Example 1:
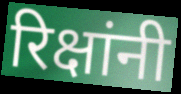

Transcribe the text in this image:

रिक्षांनी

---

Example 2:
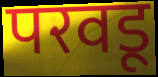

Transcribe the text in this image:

परवडू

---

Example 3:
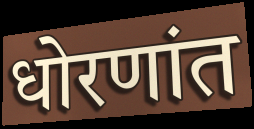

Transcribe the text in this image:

धोरणांत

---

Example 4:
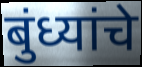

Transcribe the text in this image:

बुंध्यांचे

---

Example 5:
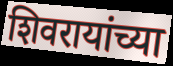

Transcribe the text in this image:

शिवरायांच्या